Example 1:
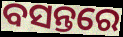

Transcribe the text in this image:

ବସନ୍ତରେ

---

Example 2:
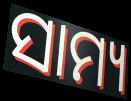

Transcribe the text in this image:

ସାମ୍ୟ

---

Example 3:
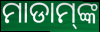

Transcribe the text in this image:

ମାଡାମ୍‌ଙ୍କ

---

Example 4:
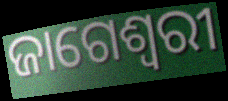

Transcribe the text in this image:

ଜାଗେଶ୍ୱରୀ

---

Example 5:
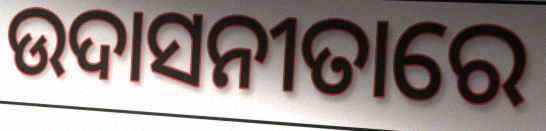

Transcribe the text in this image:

ଉଦାସନୀତାରେ